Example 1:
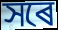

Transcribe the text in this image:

সৰে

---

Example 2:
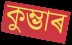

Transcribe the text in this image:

কুম্ভাৰ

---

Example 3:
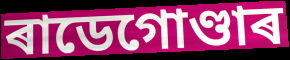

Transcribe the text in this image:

ৰাডেগোণ্ডাৰ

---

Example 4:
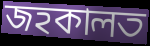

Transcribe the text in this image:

জহকালত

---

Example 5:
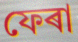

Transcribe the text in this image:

ফেৰা